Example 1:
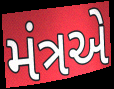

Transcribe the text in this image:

મંત્રએ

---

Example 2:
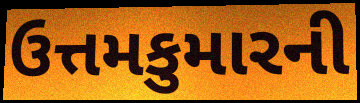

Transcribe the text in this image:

ઉત્તમકુમારની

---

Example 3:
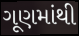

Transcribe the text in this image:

ગૂણમાંથી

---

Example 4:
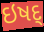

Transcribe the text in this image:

ઇષદ્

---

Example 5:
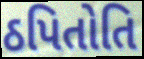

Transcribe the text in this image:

ઠપિતોતિ